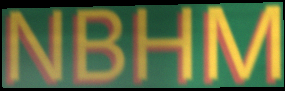
NBHM